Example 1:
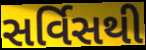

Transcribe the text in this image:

સર્વિસથી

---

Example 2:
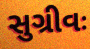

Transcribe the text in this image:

સુગ્રીવઃ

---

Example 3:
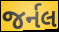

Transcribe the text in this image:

જર્નલ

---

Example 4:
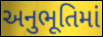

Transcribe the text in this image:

અનુભૂતિમાં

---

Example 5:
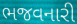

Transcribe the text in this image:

ભજવનારી